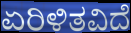
ಏರಿಳಿತವಿದೆ